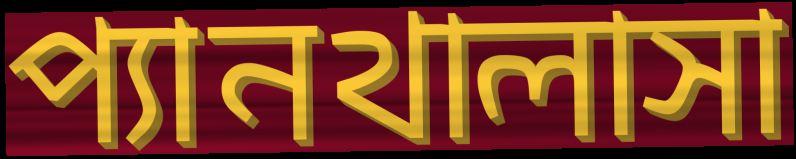
প্যানথালাসা